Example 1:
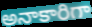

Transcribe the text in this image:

అనాకారిగా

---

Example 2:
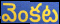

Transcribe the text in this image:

వెంకట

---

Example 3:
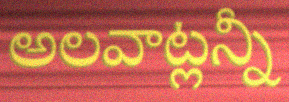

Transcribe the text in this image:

అలవాట్లన్నీ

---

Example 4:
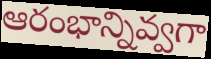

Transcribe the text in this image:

ఆరంభాన్నివ్వగా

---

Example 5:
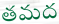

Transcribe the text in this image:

తమద